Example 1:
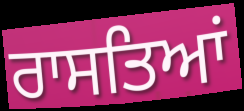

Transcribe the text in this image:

ਰਾਸਤਿਆਂ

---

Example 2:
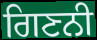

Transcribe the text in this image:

ਗਿਣਨੀ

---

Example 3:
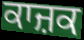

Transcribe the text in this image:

ਕਾਜ਼ਕ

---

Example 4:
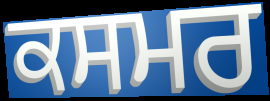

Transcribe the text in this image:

ਕਸਮਰ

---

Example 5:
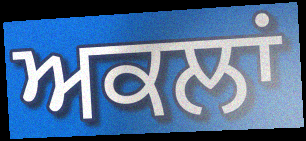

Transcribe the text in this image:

ਅਕਲਾਂ